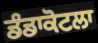
ਡੰਡਾਕੋਟਲਾ